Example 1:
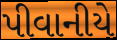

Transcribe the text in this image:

પીવાનીયે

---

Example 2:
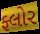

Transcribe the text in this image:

ફ્લોર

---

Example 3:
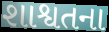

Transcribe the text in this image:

શાશ્વતના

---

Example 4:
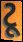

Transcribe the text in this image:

ટૂ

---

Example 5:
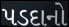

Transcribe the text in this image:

પડદાનો